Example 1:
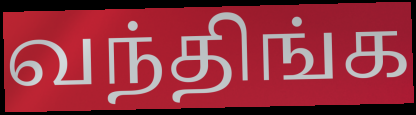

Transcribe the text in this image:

வந்திங்க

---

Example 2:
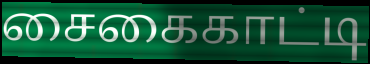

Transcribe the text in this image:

சைகைகாட்டி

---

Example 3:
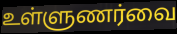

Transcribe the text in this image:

உள்ளுணர்வை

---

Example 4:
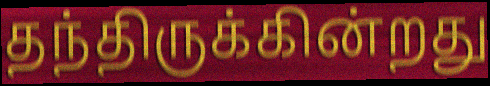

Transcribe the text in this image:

தந்திருக்கின்றது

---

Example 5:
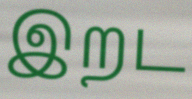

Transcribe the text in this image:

இறட